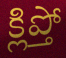
క్లిప్తో